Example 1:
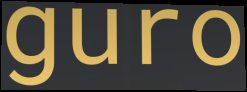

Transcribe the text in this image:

guro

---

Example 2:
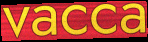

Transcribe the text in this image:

vacca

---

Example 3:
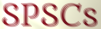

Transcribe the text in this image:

SPSCs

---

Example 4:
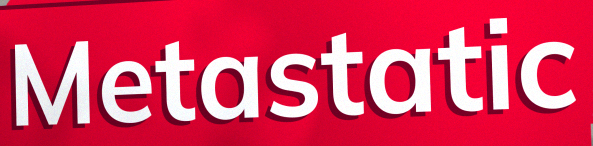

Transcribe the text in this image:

Metastatic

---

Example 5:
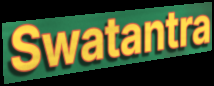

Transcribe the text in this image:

Swatantra